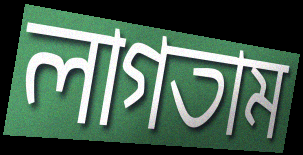
লাগতাম